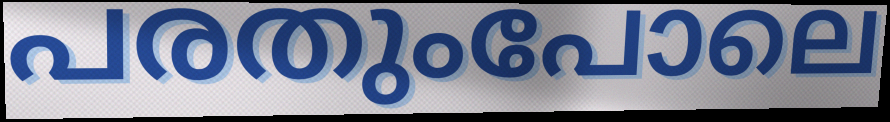
പരതുംപോലെ